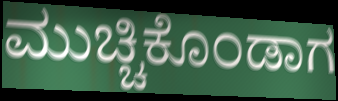
ಮುಚ್ಚಿಕೊಂಡಾಗ